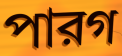
পারগ